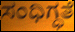
ಸಂಧಿಗ್ಧತೆ